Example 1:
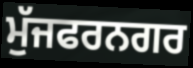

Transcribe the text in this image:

ਮੁੱਜਫਰਨਗਰ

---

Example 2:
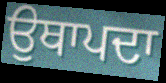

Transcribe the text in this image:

ਉਥਾਪਦਾ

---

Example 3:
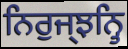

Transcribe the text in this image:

ਨਿਰੁਜ੍ਝਨ੍ਤਿ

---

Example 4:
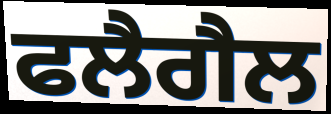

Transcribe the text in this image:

ਫਲੈਗੈਲ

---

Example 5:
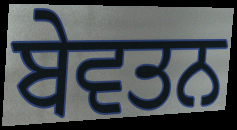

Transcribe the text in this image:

ਬੇਵਤਨ